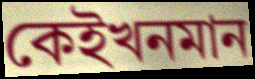
কেইখনমান